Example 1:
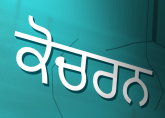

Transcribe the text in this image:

ਕੋਚਰਨ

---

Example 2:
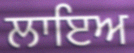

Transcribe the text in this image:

ਲਾਇਅ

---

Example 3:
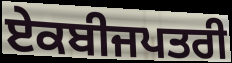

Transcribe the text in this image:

ਏਕਬੀਜਪਤਰੀ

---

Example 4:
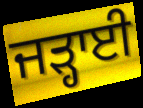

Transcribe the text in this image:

ਜੜ੍ਹਾਈ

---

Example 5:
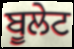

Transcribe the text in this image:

ਬੂਲੇਟ